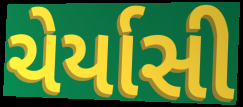
ચેર્યાસી